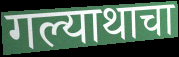
गल्याथाचा